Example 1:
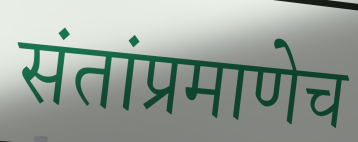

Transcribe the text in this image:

संतांप्रमाणेच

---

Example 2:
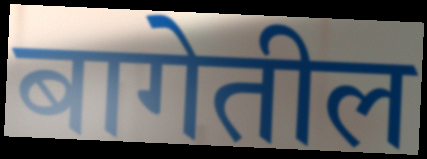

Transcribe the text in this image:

बागेतील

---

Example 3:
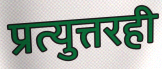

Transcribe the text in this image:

प्रत्युत्तरही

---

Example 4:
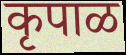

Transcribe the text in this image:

कृपाळ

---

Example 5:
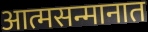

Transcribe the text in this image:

आत्मसन्मानात